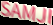
SAMJI